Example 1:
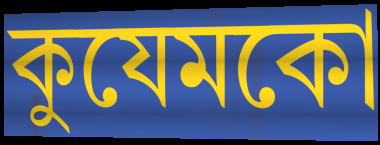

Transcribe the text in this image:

কুযেমকো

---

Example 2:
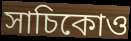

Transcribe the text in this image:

সাচিকোও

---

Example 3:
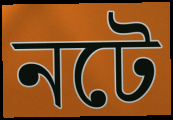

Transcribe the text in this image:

নটে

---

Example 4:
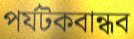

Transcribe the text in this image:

পর্যটকবান্ধব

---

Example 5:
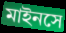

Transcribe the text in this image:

মাইনসে